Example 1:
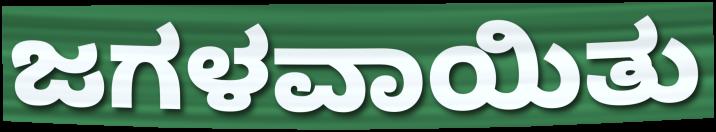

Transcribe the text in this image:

ಜಗಳವಾಯಿತು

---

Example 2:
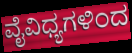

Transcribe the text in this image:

ವೈವಿಧ್ಯಗಳಿಂದ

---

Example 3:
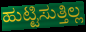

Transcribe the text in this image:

ಹುಟ್ಟಿಸುತ್ತಿಲ್ಲ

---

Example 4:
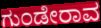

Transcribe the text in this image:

ಗುಂಡೇರಾವ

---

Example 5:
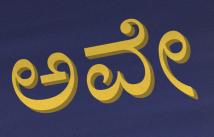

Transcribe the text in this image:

ಅವೇ